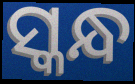
ସ୍କନ୍ଧ